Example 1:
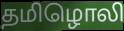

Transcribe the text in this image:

தமிழொலி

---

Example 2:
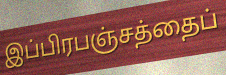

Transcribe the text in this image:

இப்பிரபஞ்சத்தைப்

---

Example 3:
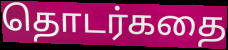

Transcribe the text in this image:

தொடர்கதை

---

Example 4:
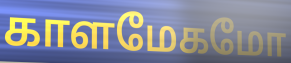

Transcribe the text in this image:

காளமேகமோ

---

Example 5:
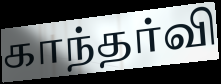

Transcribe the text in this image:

காந்தர்வி